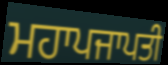
ਮਹਾਪਜਾਪਤੀ